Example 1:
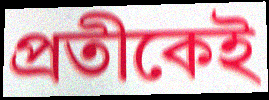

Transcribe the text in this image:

প্রতীকেই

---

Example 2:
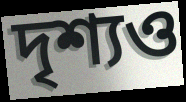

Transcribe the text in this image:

দৃশ্যও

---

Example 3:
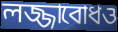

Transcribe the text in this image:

লজ্জাবোধও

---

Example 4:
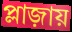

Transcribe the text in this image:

প্লাজ়ায়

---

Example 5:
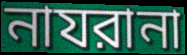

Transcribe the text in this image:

নাযরানা